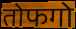
तोफगो